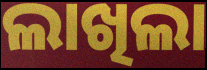
ଲାଖିଲା